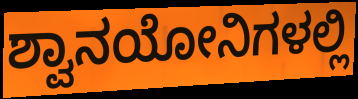
ಶ್ವಾನಯೋನಿಗಳಲ್ಲಿ